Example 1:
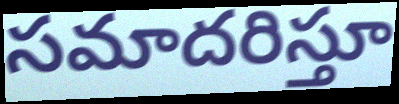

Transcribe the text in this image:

సమాదరిస్తూ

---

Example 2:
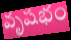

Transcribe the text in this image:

వృషభం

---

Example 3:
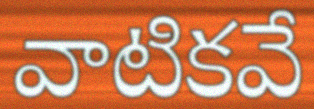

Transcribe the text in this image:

వాటికవే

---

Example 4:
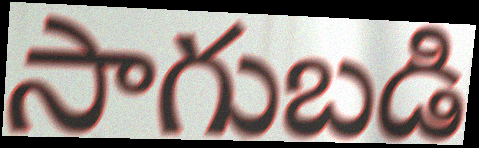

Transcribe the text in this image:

సాగుబడి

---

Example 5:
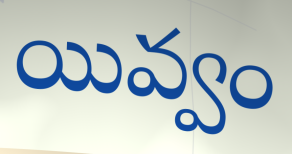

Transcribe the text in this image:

యివ్వం